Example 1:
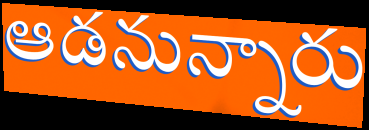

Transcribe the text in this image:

ఆడనున్నారు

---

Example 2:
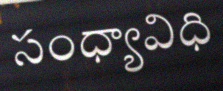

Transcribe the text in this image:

సంధ్యావిధి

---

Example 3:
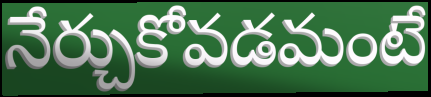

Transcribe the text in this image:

నేర్చుకోవడమంటే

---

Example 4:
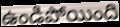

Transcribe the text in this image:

ఉండిపోయింది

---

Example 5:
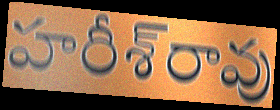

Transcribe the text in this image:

హరీశ్‌రావు